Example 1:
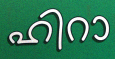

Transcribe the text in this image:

ഹിറാ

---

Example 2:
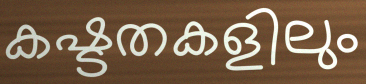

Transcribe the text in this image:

കഷ്ടതകളിലും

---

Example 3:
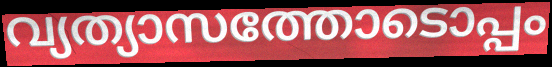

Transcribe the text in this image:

വ്യത്യാസത്തോടൊപ്പം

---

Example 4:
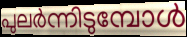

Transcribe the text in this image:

പുലർന്നിടുമ്പോൾ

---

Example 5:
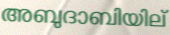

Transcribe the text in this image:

അബുദാബിയില്